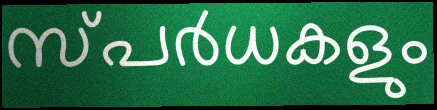
സ്പർധകളും